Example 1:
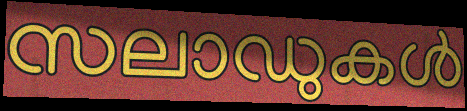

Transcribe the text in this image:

സലാഡുകൾ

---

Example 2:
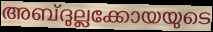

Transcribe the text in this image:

അബ്ദുല്ലക്കോയയുടെ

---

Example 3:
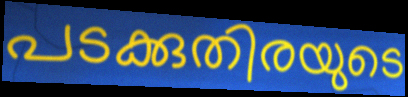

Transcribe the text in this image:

പടക്കുതിരയുടെ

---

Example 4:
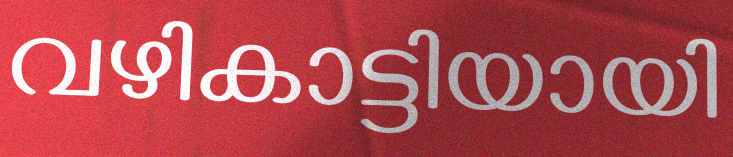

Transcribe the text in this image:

വഴികാട്ടിയായി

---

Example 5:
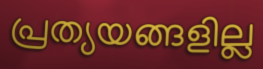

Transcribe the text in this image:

പ്രത്യയങ്ങളില്ല